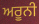
ਅਰੂਨੀ